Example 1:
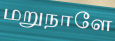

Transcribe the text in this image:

மறுநாளே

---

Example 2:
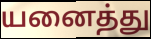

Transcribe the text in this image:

யனைத்து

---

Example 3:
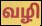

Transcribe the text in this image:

வழி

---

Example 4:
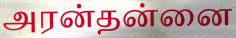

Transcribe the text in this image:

அரன்தன்னை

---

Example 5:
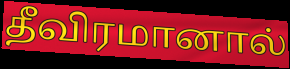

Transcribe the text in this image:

தீவிரமானால்